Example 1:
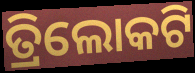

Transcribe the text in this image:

ତ୍ରିଲୋକଟି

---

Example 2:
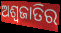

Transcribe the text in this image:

ଅଶ୍ୱଜାତିର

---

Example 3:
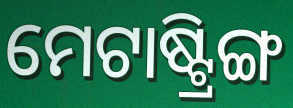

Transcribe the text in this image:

ମେଟାଷ୍ଟ୍ରିଙ୍ଗ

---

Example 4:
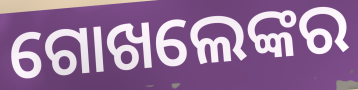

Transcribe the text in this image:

ଗୋଖଲେଙ୍କର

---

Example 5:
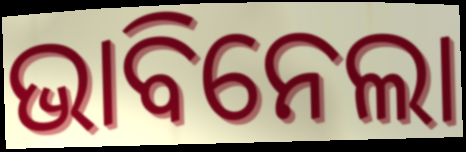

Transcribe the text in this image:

ଭାବିନେଲା